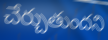
చేర్చుతుందని